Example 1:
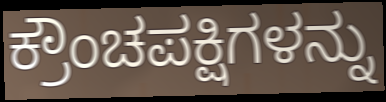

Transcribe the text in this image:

ಕ್ರೌಂಚಪಕ್ಷಿಗಳನ್ನು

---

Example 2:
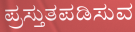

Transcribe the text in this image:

ಪ್ರಸ್ತುತಪಡಿಸುವ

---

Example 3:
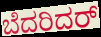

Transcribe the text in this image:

ಬೆದರಿದರ್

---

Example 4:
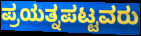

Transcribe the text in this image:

ಪ್ರಯತ್ನಪಟ್ಟವರು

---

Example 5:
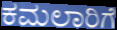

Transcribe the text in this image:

ಕಮಲಾರಿಗೆ